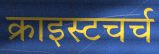
क्राइस्टचर्च